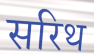
सरिथ